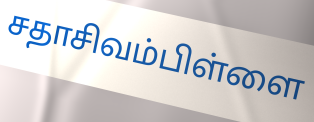
சதாசிவம்பிள்ளை